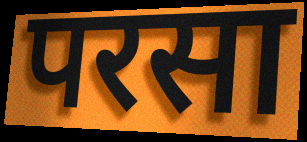
परसा